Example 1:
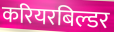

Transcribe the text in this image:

करियरबिल्डर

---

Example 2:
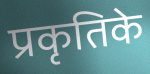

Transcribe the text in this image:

प्रकृतिके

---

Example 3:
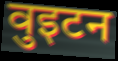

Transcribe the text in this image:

वुइटन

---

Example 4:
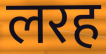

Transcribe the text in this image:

लरह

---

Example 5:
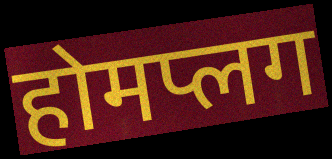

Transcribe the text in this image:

होमप्लग